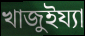
খাজুইয্যা